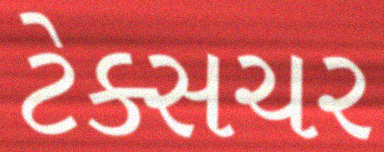
ટેક્સચર